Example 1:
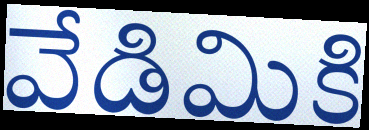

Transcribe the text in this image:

వేడిమికి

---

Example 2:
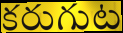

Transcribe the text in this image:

కరుగుట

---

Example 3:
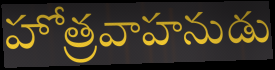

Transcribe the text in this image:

హోత్రవాహనుడు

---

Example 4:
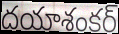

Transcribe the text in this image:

దయాశంకర్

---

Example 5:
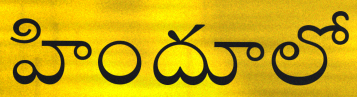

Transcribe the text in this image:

హిందూలో